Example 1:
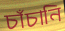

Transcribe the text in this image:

চাঁচানি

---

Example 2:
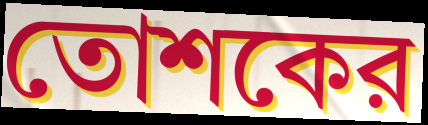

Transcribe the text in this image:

তোশকের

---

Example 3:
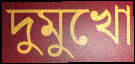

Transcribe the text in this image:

দুমুখো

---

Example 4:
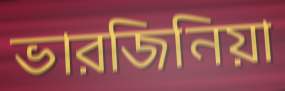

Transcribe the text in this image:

ভারজিনিয়া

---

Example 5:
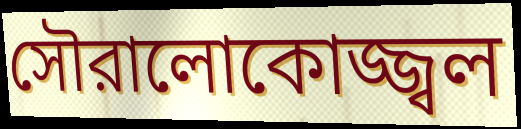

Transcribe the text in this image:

সৌরালোকোজ্জ্বল